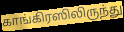
காங்கிரஸிலிருந்து